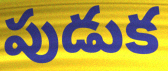
పుడుక